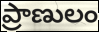
ప్రాణులం